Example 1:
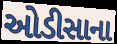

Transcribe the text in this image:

ઓડીસાના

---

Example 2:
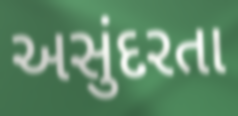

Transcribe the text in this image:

અસુંદરતા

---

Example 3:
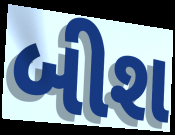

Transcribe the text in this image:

બીશ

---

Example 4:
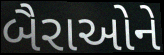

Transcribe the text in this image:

બૈરાઓને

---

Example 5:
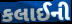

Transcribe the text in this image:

કલાઈની